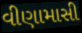
વીણામાસી